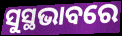
ସୁସ୍ଥଭାବରେ